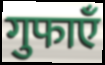
गुफाएँ